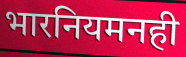
भारनियमनही